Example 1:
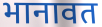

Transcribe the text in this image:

भानावत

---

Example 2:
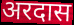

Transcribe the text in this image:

अरदास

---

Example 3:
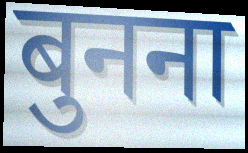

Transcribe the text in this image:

बुनना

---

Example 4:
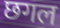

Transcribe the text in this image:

छगल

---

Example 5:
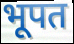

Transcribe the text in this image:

भूपत